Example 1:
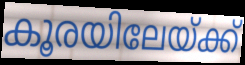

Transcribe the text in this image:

കൂരയിലേയ്ക്ക്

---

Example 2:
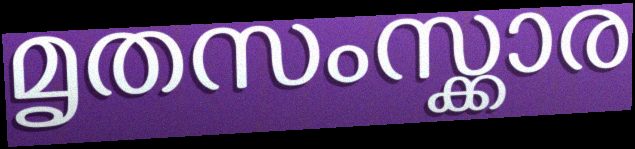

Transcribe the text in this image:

മൃതസംസ്ക്കാര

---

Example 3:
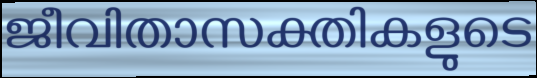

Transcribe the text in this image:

ജീവിതാസക്തികളുടെ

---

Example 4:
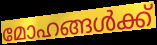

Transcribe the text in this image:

മോഹങ്ങൾക്ക്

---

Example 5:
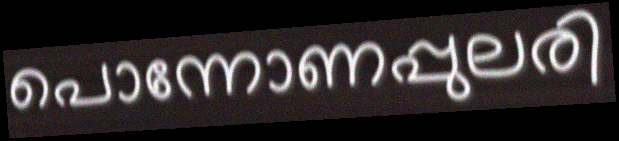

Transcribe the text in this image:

പൊന്നോണപ്പുലരി